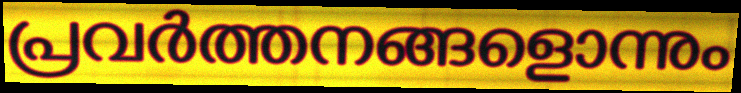
പ്രവർത്തനങ്ങളൊന്നും